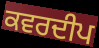
ਕਵਰਦੀਪ